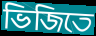
ভিজিতে